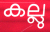
കല്ലു